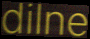
dilne